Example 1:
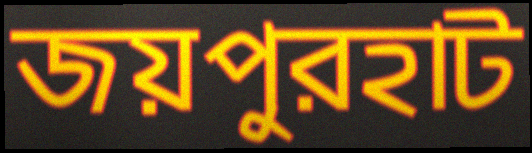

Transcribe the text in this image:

জয়পুরহাট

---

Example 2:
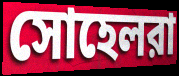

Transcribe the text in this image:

সোহেলরা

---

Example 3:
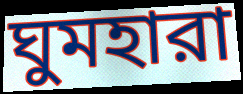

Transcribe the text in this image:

ঘুমহারা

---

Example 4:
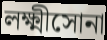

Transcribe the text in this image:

লক্ষ্মীসোনা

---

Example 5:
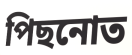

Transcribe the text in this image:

পিছনোত